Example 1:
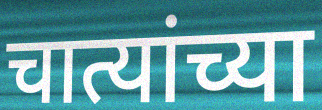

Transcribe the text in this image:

चात्यांच्या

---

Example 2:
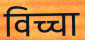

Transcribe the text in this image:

विच्चा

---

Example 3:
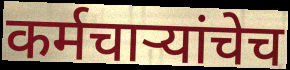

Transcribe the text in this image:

कर्मचाऱ्यांचेच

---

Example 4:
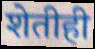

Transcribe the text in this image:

शेतीही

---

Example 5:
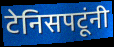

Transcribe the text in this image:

टेनिसपटूंनी